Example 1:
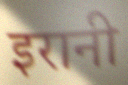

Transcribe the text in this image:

इरानी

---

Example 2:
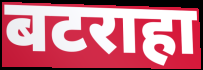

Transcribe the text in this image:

बटराहा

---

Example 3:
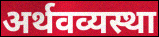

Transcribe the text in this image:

अर्थवव्यस्था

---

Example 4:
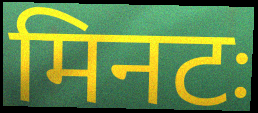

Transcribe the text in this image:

मिनटः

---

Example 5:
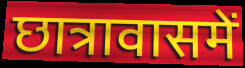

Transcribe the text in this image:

छात्रावासमें